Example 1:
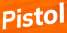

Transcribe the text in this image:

Pistol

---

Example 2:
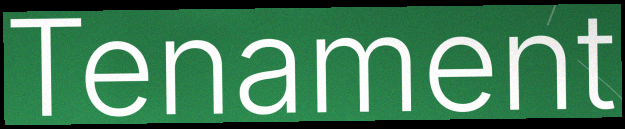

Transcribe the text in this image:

Tenament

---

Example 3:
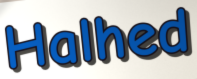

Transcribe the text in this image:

Halhed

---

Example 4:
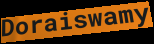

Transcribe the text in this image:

Doraiswamy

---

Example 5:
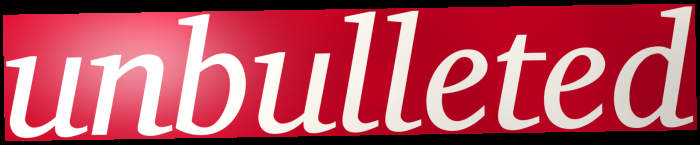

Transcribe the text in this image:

unbulleted